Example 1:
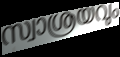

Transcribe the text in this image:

സ്വാശ്രയവും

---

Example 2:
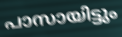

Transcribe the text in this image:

പാസായിട്ടും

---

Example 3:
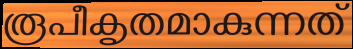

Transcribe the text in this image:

രൂപീകൃതമാകുന്നത്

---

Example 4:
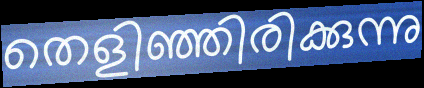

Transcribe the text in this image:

തെളിഞ്ഞിരിക്കുന്നു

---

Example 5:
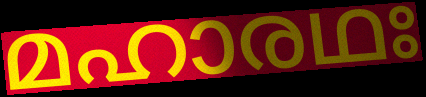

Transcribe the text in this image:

മഹാരഥഃ